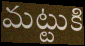
మట్టుకి